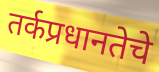
तर्कप्रधानतेचे